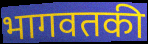
भागवतकी